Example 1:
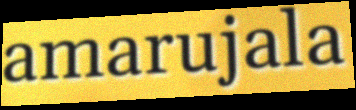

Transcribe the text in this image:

amarujala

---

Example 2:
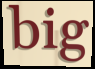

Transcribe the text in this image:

big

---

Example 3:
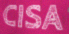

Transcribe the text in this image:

CISA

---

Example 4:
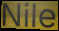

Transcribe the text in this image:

Nile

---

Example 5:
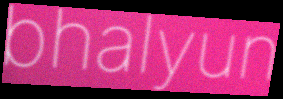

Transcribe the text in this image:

bhalyun